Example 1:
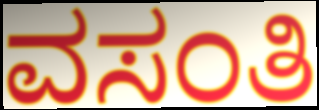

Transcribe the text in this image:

ವಸಂತಿ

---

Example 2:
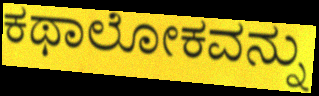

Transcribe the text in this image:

ಕಥಾಲೋಕವನ್ನು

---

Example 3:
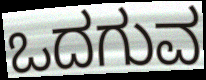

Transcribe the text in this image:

ಒದಗುವ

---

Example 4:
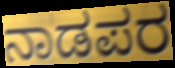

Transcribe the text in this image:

ನಾಡಪರ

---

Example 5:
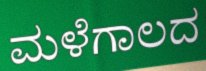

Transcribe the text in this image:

ಮಳೆಗಾಲದ